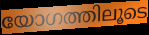
യോഗത്തിലൂടെ